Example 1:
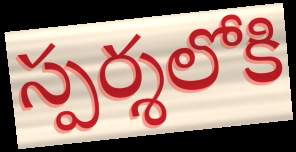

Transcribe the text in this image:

స్పర్శలోకి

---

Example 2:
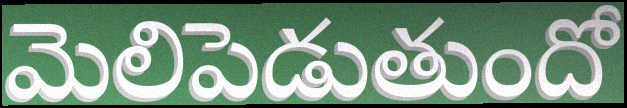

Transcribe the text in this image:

మెలిపెడుతుందో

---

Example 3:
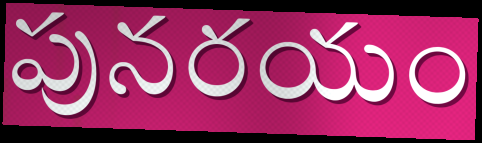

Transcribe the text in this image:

పునరయం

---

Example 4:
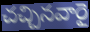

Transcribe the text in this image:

చచ్చినవారై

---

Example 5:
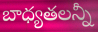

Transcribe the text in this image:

బాధ్యతలన్నీ